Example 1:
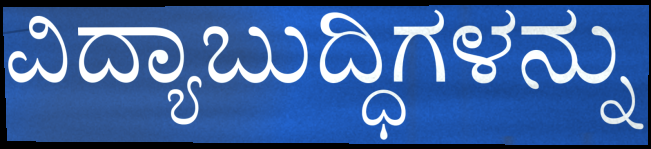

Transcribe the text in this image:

ವಿದ್ಯಾಬುದ್ಧಿಗಳನ್ನು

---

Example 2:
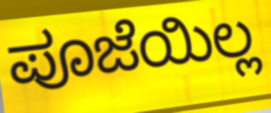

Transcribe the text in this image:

ಪೂಜೆಯಿಲ್ಲ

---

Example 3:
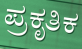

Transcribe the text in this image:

ಪ್ರಕೃತಿಕ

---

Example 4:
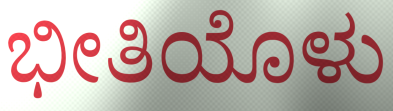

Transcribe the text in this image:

ಭೀತಿಯೊಳು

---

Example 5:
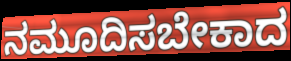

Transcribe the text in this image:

ನಮೂದಿಸಬೇಕಾದ